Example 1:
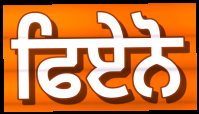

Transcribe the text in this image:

ਫਿਏਨੋ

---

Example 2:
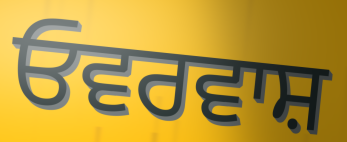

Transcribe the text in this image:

ਓਵਰਵਾਸ਼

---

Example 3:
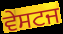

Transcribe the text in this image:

ਵੇਸਟਜ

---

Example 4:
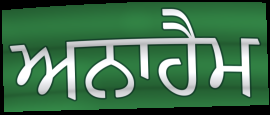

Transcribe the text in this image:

ਅਨਾਹੈਮ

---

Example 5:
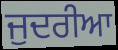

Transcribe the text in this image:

ਜੁਦਰੀਆ